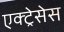
एक्ट्रेसेस